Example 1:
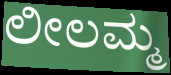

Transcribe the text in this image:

ಲೀಲಮ್ಮ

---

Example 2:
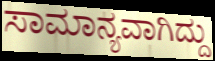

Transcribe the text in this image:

ಸಾಮಾನ್ಯವಾಗಿದ್ದು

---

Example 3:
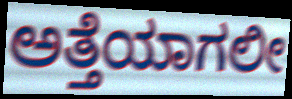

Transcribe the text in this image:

ಅತ್ತೆಯಾಗಲೀ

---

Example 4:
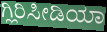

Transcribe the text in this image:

ಗ್ಲಿರಿಸೀಡಿಯಾ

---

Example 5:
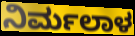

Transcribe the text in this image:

ನಿರ್ಮಲಾಳ